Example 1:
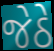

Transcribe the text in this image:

જેઠે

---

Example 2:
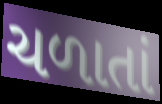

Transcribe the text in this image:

ચળાતાં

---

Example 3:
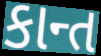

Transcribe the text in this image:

કાન્ત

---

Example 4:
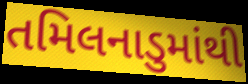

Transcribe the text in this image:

તમિલનાડુમાંથી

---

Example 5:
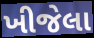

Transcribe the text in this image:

ખીજેલા